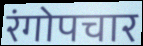
रंगोपचार